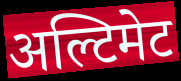
अल्टिमेट